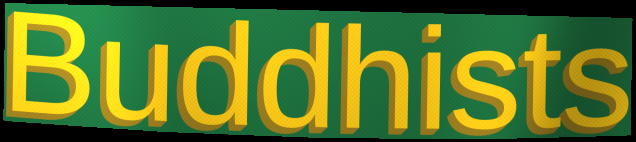
Buddhists